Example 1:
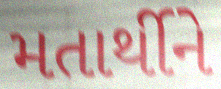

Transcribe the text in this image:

મતાર્થીને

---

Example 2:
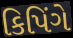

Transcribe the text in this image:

કિપિંગે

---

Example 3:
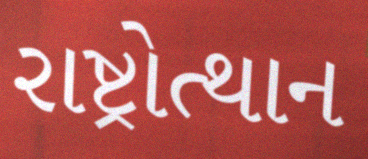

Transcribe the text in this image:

રાષ્ટ્રોત્થાન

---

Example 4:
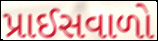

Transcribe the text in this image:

પ્રાઈસવાળો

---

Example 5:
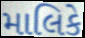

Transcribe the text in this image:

માલિકે